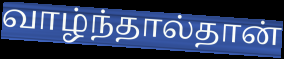
வாழ்ந்தால்தான்